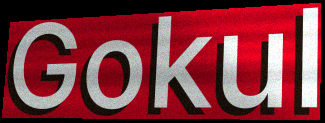
Gokul